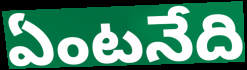
ఏంటనేది